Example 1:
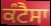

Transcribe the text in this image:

ਕੰਟੈਸਾ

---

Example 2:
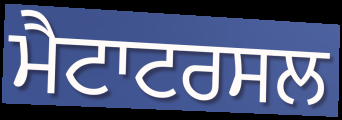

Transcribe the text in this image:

ਮੈਟਾਟਰਸਲ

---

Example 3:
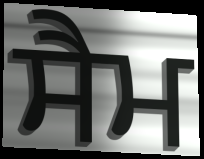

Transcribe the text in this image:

ਸੈਮ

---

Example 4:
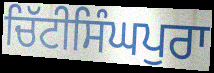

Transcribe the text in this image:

ਚਿੱਟੀਸਿੰਘਪੁਰਾ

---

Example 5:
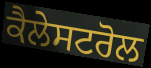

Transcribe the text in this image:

ਕੈਲੇਸਟਰੋਲ